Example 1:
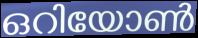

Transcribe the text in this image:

ഒറിയോൺ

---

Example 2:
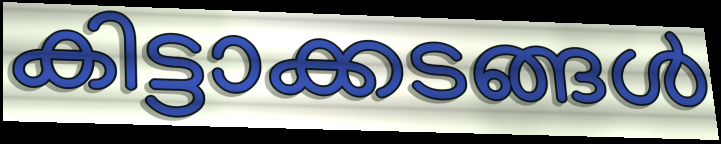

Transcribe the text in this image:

കിട്ടാക്കടങ്ങൾ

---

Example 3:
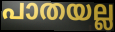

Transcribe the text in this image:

പാതയല്ല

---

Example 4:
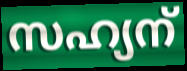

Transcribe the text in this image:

സഹ്യന്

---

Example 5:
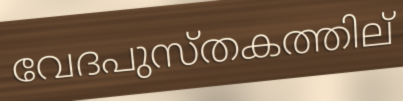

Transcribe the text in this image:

വേദപുസ്തകത്തില്